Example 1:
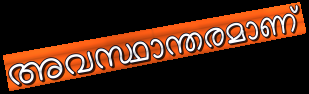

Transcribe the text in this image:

അവസ്ഥാന്തരമാണ്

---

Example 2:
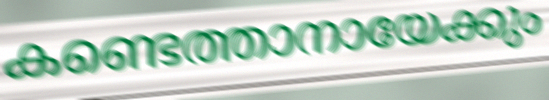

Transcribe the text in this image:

കണ്ടെത്താനായേക്കും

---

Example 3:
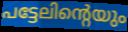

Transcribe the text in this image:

പട്ടേലിന്റെയും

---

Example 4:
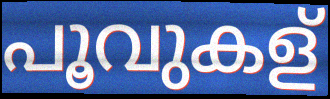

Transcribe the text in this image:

പൂവുകള്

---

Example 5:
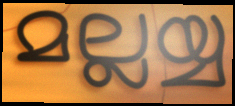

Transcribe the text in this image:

മല്ലയ്യ